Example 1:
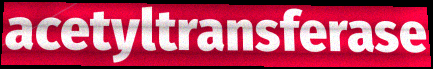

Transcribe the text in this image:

acetyltransferase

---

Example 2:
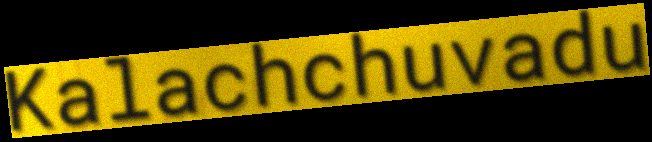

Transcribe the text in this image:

Kalachchuvadu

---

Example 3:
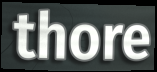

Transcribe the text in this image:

thore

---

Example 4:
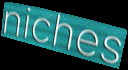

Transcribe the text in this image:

niches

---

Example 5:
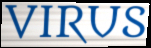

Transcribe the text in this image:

VIRUS